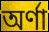
অর্ণা